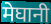
मेघानी